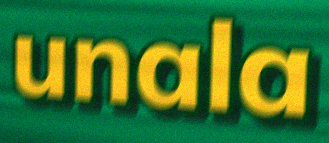
unala